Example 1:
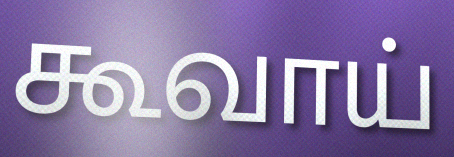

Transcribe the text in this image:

கூவாய்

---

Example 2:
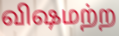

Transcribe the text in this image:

விஷமற்ற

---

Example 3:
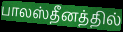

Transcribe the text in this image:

பாலஸ்தீனத்தில்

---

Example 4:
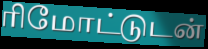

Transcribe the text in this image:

ரிமோட்டுடன்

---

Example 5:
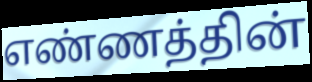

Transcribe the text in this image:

எண்ணத்தின்